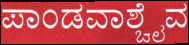
ಪಾಂಡವಾಶ್ಚೈವ